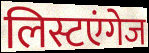
लिस्टएंगेज